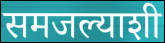
समजल्याशी